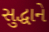
સુદ્ધાને